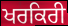
ਖਰਕਿਰੀ